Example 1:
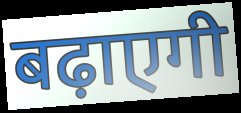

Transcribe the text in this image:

बढ़ाएगी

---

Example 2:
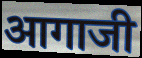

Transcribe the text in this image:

आगाजी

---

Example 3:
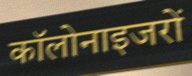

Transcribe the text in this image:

कॉलोनाइजरों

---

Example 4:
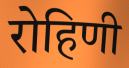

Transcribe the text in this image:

रोहिणी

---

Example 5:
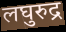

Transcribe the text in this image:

लघुरुद्र